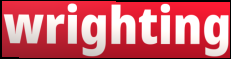
wrighting